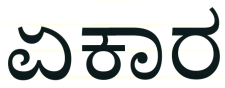
ಏಕಾರ